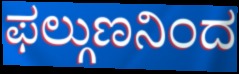
ಫಲ್ಗುಣನಿಂದ